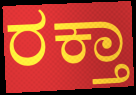
ರಕ್ತಾ